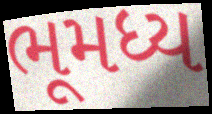
ભૂમધ્ય